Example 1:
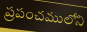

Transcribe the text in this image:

ప్రపంచములోని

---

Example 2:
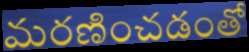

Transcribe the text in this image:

మరణించడంతో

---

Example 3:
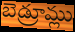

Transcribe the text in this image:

బెడ్రూమ్లు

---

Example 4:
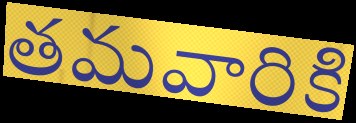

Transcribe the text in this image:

తమవారికి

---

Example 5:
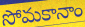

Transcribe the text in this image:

సోమకానాం